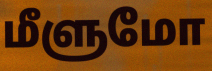
மீளுமோ